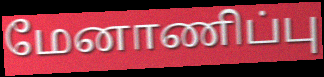
மேனாணிப்பு